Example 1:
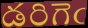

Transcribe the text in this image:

డరిగెఁ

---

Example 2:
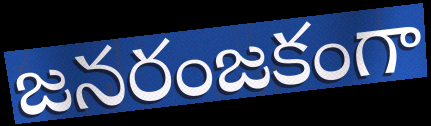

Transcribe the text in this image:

జనరంజకంగా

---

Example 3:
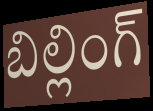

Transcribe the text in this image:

బిల్లింగ్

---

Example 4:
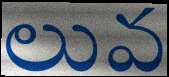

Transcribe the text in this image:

లువ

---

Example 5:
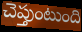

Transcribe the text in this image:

చెప్తుంటుంది